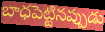
బాధపెట్టినప్పుడు